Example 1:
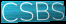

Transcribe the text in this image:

CSBS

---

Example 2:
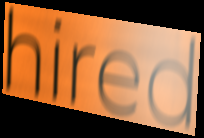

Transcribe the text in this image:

hired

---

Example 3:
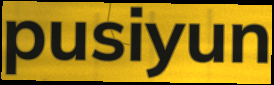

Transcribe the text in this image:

pusiyun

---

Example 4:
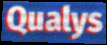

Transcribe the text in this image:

Qualys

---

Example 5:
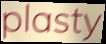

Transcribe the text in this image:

plasty